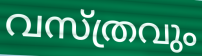
വസ്ത്രവും